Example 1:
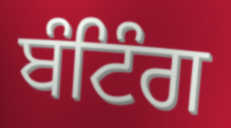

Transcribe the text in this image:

ਬੰਟਿੰਗ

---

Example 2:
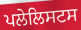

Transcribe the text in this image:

ਪਲੇਲਿਸਟਸ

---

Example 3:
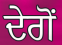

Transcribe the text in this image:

ਦੇਗੋਂ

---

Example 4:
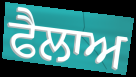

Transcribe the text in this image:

ਫੈਲਾਅ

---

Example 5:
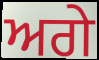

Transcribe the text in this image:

ਅਗੇ